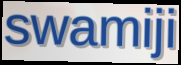
swamiji